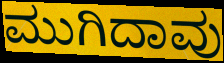
ಮುಗಿದಾವು